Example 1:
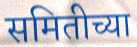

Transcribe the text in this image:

समितीच्या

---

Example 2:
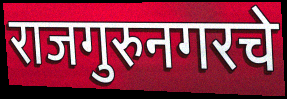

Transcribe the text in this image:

राजगुरुनगरचे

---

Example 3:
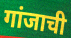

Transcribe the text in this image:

गांजाची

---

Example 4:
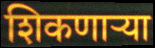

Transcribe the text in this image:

शिकणाऱ्या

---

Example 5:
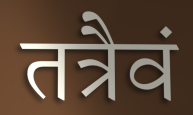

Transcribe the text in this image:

तत्रैवं